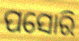
ପସୋରି